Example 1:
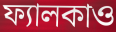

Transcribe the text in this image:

ফ্যালকাও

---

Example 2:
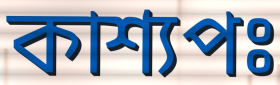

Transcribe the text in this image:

কাশ্যপঃ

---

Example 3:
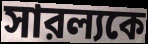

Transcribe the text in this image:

সারল্যকে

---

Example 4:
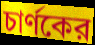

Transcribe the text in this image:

চার্ণকের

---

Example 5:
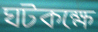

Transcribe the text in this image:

ঘটকক্ষে